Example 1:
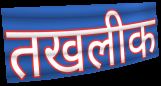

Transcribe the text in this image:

तखलीक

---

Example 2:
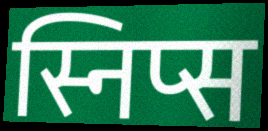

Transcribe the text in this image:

स्निप्स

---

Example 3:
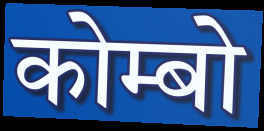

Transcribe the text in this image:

कोम्बो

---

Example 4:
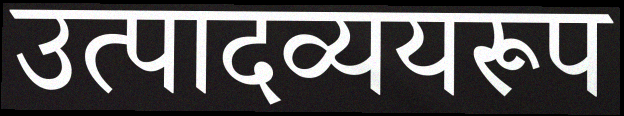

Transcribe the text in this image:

उत्पादव्ययरूप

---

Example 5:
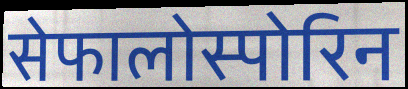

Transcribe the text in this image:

सेफालोस्पोरिन